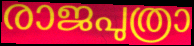
രാജപുത്രാ